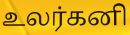
உலர்கனி